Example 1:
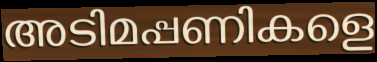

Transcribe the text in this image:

അടിമപ്പണികളെ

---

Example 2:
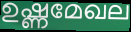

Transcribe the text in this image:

ഉഷ്ണമേഖല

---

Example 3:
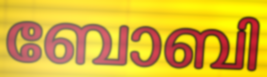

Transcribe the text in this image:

ബോബി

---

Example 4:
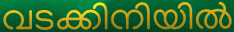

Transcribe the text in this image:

വടക്കിനിയിൽ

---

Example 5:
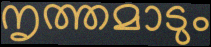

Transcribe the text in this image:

നൃത്തമാടും